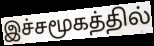
இச்சமூகத்தில்